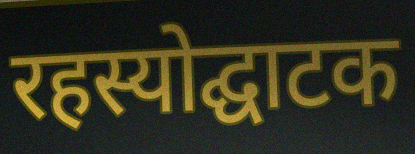
रहस्योद्घाटक